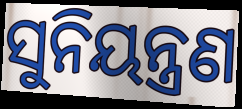
ସୁନିୟନ୍ତ୍ରଣ